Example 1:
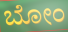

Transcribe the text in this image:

ಬೋಂ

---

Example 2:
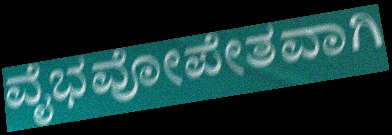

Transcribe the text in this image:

ವೈಭವೋಪೇತವಾಗಿ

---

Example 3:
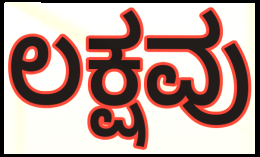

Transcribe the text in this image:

ಲಕ್ಷವು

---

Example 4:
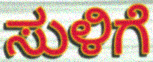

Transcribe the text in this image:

ಸುಳಿಗೆ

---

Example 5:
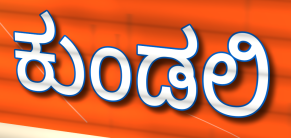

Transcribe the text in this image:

ಕುಂಡಲಿ